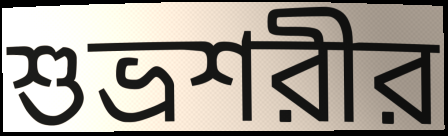
শুভ্রশরীর